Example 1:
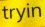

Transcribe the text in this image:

tryin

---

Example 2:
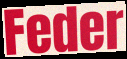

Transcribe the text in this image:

Feder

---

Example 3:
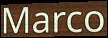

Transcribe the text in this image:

Marco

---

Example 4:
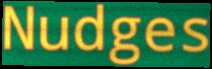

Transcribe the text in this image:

Nudges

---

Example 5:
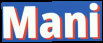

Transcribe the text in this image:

Mani